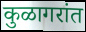
कुळागरांत